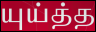
யுய்த்த